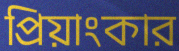
প্রিয়াংকার